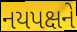
નયપક્ષને